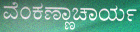
ವೆಂಕಣ್ಣಾಚಾರ್ಯ